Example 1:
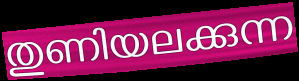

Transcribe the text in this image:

തുണിയലക്കുന്ന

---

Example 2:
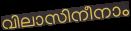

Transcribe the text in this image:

വിലാസിനീനാം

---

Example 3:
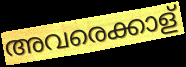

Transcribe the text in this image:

അവരെക്കാള്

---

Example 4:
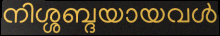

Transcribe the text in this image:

നിശ്ശബ്ദയായവൾ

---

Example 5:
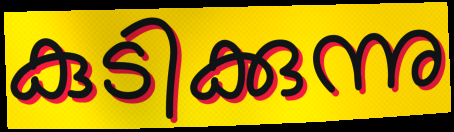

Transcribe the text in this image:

കുടിക്കുന്നു